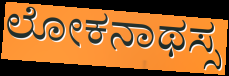
ಲೋಕನಾಥಸ್ಸ